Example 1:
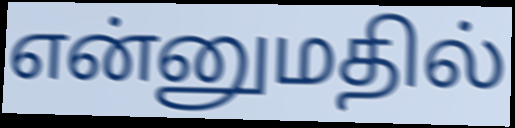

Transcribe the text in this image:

என்னுமதில்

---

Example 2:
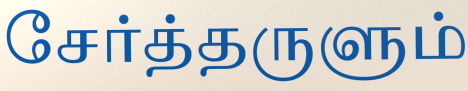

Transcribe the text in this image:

சேர்த்தருளும்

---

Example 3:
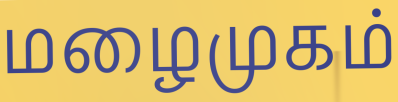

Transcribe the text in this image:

மழைமுகம்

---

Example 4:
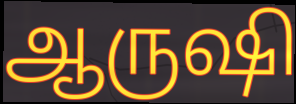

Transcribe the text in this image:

ஆருஷி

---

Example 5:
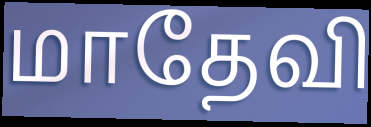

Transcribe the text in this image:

மாதேவி